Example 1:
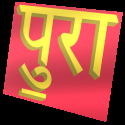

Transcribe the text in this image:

पु॒रा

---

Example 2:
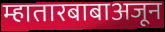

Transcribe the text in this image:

म्हातारबाबाअजून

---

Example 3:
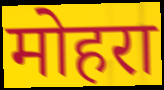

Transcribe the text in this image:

मोहरा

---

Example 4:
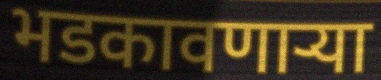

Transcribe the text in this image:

भडकावणाऱ्या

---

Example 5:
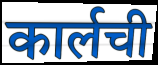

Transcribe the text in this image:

कार्लची